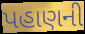
પહાણની